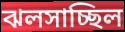
ঝলসাচ্ছিল